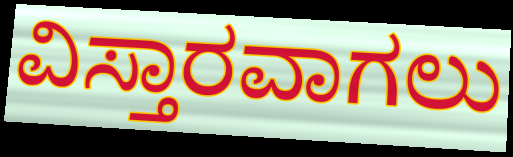
ವಿಸ್ತಾರವಾಗಲು